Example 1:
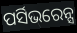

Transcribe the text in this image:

ପର୍ସିଭରେନ୍ସ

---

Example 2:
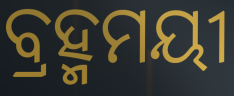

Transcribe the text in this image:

ବ୍ରହ୍ମମୟୀ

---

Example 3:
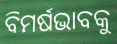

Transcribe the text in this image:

ବିମର୍ଷଭାବକୁ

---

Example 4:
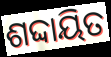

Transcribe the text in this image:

ଶଦ୍ଦାୟିତ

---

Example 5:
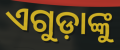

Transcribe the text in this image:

ଏଗୁଡ଼ାଙ୍କୁ